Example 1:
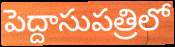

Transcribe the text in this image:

పెద్దాసుపత్రిలో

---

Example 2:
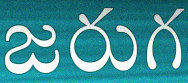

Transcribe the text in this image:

జరుగ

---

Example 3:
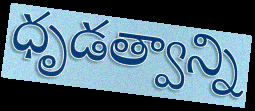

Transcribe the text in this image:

ధృడత్వాన్ని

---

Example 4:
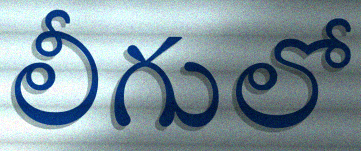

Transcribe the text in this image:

లీగులో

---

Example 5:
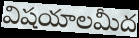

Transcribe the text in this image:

విషయాలమీద